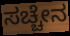
ಸಚ್ಚೇನ